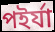
পইর্যা